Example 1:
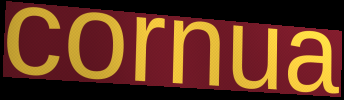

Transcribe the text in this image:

cornua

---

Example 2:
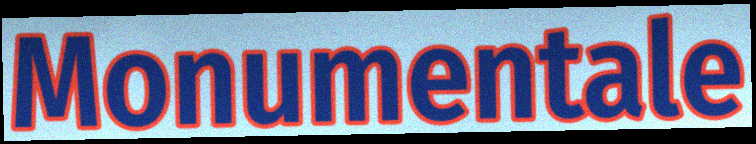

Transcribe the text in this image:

Monumentale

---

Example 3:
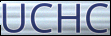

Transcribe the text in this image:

UCHC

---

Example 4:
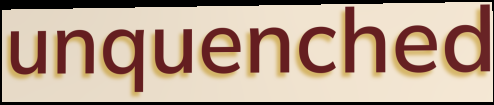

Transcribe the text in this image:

unquenched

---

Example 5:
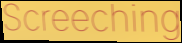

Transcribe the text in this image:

Screeching